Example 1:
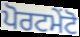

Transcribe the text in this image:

ਪੋਰਟਮੇਂਟੋ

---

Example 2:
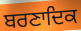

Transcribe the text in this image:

ਬਰਣਾਦਿਕ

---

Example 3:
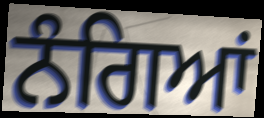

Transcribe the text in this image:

ਨੰਗਿਆਂ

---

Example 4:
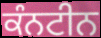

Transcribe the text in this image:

ਕੰਨਟੀਨ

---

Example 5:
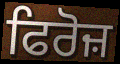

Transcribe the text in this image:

ਫਿਰੋਜ਼